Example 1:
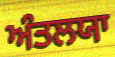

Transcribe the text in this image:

ਅੰਤਲਯਾ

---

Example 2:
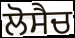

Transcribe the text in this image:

ਲੋਸੈਚ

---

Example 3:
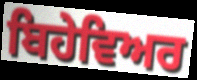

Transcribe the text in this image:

ਬਿਹੇਵਿਅਰ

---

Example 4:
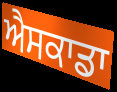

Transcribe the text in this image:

ਐਸਕਾਡਾ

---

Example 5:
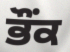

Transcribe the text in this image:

ਭੌਂਕ